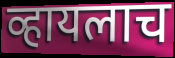
व्हायलाच